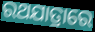
ରଥଯାତ୍ରାରେ